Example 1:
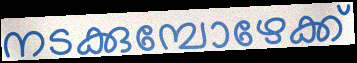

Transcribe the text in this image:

നടക്കുമ്പോഴേക്ക്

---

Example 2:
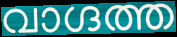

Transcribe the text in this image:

വാഗ്ദത്ത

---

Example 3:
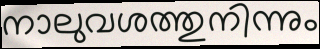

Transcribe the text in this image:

നാലുവശത്തുനിന്നും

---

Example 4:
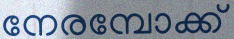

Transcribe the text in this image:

നേരമ്പോക്ക്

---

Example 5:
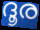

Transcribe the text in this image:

ദൂര